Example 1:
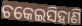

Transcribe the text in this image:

ଚକେଇସିହାଣି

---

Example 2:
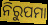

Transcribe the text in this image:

ନିରୁପମା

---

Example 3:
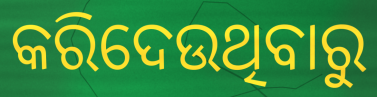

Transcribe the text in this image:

କରିଦେଉଥିବାରୁ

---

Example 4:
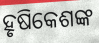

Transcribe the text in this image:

ହୃଷିକେଶଙ୍କ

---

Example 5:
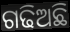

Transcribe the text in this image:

ଗଢିଅଛି